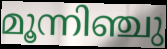
മൂന്നിഞ്ചു